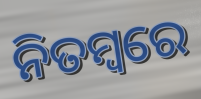
ନିତମ୍ବରେ